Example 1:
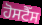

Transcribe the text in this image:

ਹੋਸਟੈੱਸ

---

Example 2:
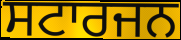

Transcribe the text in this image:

ਸਟਾਰਜਨ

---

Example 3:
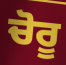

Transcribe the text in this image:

ਚੋਰੂ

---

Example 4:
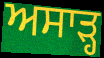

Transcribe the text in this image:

ਅਸਾੜ੍ਹ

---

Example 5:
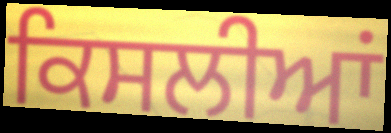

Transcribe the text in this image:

ਕਿਸਲੀਆਂ